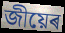
জীয়েৰ